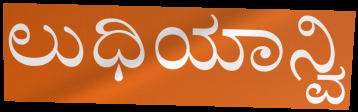
ಲುಧಿಯಾನ್ವಿ